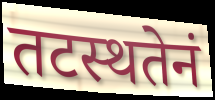
तटस्थतेनं